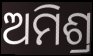
ଅମିଶ୍ର